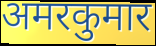
अमरकुमार